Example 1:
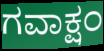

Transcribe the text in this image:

ಗವಾಕ್ಷಂ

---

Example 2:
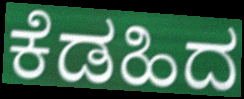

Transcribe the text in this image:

ಕೆಡಹಿದ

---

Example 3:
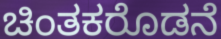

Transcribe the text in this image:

ಚಿಂತಕರೊಡನೆ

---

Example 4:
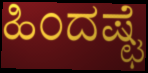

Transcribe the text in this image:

ಹಿಂದಷ್ಟೆ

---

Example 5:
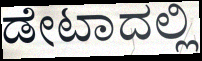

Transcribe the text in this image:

ಡೇಟಾದಲ್ಲಿ